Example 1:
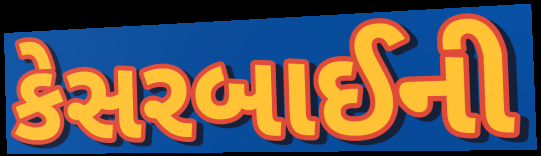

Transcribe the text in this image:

કેસરબાઈની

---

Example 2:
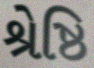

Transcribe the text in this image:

શ્રેષ્ઠિ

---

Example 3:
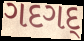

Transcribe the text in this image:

ગદગદ્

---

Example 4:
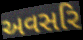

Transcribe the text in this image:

અવસરિ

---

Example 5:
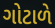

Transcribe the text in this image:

ગોટાળે